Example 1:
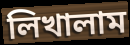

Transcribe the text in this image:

লিখালাম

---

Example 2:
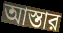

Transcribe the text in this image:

আস্তার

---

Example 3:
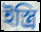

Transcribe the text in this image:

ইস্ত্রি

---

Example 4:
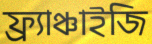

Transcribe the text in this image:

ফ্র্যাঞ্চাইজি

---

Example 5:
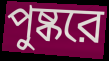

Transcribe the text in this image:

পুষ্করে